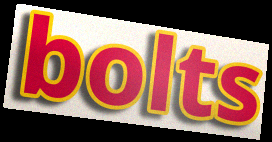
bolts